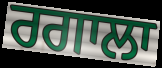
ਰਗਾਲਾ